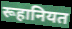
रूहानियत